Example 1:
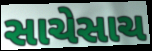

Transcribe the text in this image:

સાચેસાચ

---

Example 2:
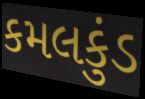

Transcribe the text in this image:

કમલકુંડ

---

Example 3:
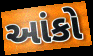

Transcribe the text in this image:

આંકો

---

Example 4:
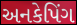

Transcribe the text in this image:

અનકેપિંગ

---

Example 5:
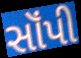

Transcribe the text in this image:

સૉંપી